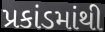
પ્રકાંડમાંથી